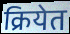
क्रियेत